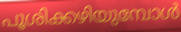
പൂശിക്കഴിയുമ്പോൾ